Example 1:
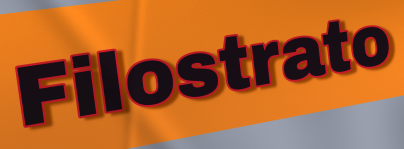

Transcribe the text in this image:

Filostrato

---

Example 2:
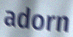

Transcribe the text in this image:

adorn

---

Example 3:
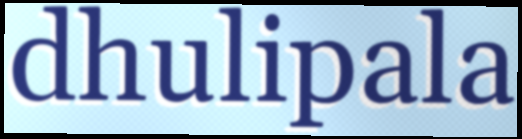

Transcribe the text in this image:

dhulipala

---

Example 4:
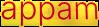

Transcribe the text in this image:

appam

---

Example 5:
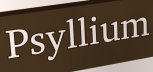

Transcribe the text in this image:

Psyllium